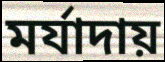
মর্যাদায়